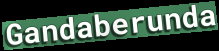
Gandaberunda